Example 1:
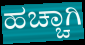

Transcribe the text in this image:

ಹಚ್ಚಾಗಿ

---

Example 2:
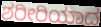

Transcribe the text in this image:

ಶರೀರಿಯಾದ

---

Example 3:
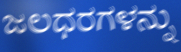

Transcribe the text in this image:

ಜಲಧರಗಳನ್ನು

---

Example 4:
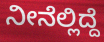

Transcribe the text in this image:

ನೀನೆಲ್ಲಿದ್ದೆ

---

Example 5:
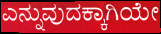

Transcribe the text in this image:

ಎನ್ನುವುದಕ್ಕಾಗಿಯೇ